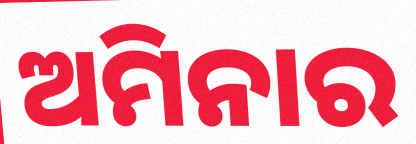
ଅମିନାର